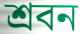
শ্ৰবন